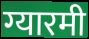
ग्यारमी